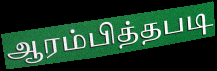
ஆரம்பித்தபடி